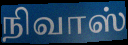
நிவாஸ்